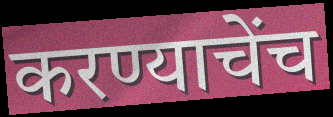
करण्याचेंच